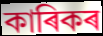
কাৰিকৰ